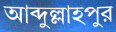
আব্দুল্লাহপুর